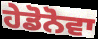
ਹੇਡੋਨੋਵਾ